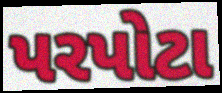
પરપોટા